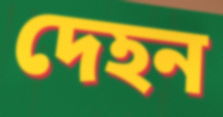
দেহন